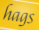
hags